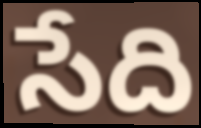
సేది